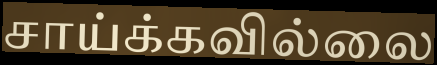
சாய்க்கவில்லை